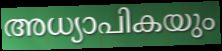
അധ്യാപികയും